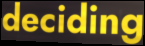
deciding